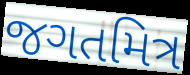
જગતમિત્ર